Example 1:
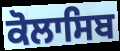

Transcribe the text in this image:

ਕੋਲਾਸਿਬ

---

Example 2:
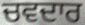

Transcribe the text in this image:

ਚਵਦਾਰ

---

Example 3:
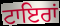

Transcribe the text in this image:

ਟਾਇਰਾਂ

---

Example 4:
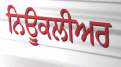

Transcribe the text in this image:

ਨਿਊਕਲੀਅਰ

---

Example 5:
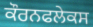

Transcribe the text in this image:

ਕੌਰਨਫਲੇਕਸ